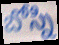
బోస్ని